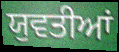
ਯੁਵਤੀਆਂ